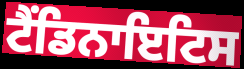
ਟੈਂਡਿਨਾਇਟਿਸ